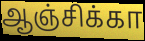
ஆஞ்சிக்கா